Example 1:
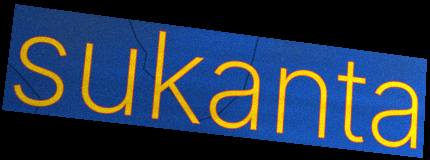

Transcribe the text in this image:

sukanta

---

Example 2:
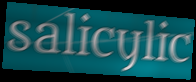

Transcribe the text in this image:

salicylic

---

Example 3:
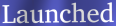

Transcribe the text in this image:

Launched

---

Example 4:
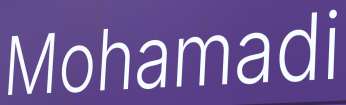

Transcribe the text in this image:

Mohamadi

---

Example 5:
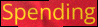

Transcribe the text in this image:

Spending